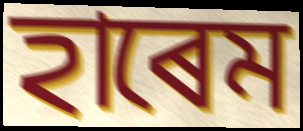
হাৰেম